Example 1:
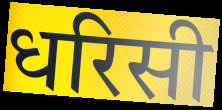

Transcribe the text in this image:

धरिसी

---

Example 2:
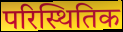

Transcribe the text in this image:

परिस्थितिक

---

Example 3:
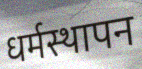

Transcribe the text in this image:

धर्मस्थापन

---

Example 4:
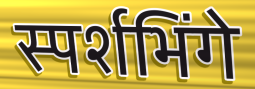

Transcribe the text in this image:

स्पर्शभिंगे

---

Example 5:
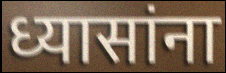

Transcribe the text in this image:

ध्यासांना